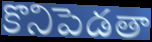
కొనిపెడతా